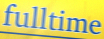
fulltime